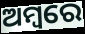
ଅମ୍ବରେ